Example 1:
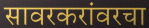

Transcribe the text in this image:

सावरकरांवरचा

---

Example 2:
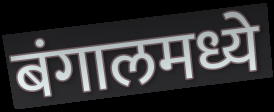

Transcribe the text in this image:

बंगालमध्ये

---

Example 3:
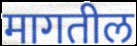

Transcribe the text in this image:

मागतील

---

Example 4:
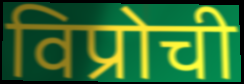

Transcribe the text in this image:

विप्रोची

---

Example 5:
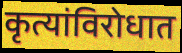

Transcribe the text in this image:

कृत्यांविरोधात